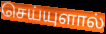
செய்யுளால்